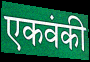
एकवंकी